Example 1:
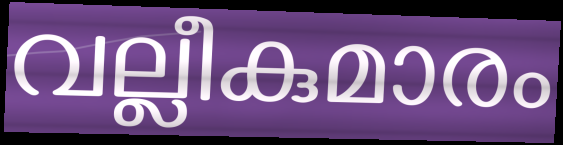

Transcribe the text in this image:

വല്ലീകുമാരം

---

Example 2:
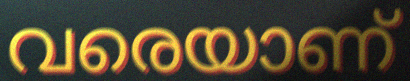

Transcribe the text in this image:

വരെയാണ്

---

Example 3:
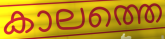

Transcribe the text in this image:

കാലത്തെ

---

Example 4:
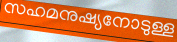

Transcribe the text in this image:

സഹമനുഷ്യനോടുള്ള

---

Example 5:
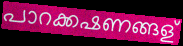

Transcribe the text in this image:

പാറക്കഷണങ്ങള്